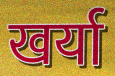
खर्या